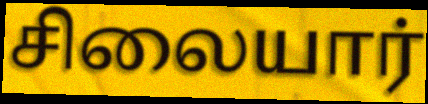
சிலையார்